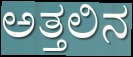
ಅತ್ತಲಿನ